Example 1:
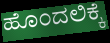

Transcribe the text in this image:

ಹೊಂದಲಿಕ್ಕೆ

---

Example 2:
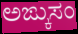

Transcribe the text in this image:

ಅಙ್ಕುಸಂ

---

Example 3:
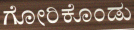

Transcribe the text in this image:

ಗೋರಿಕೊಂಡು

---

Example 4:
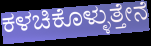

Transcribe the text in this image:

ಕಳಚಿಕೊಳ್ಳುತ್ತೇನೆ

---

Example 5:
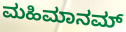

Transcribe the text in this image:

ಮಹಿಮಾನಮ್